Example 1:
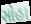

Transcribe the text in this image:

સોહા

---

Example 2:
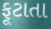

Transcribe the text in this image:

ફૂટાતા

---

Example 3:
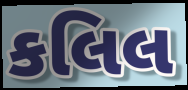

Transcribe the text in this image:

કલિલ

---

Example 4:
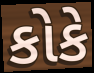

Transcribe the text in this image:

કોકે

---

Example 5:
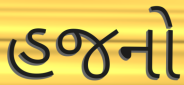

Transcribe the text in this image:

હજનો